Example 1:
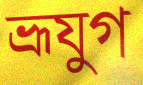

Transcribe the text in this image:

ভ্রূযুগ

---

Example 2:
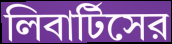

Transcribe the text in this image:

লিবার্টিসের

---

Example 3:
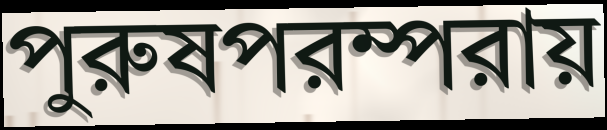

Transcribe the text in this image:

পুরুষপরম্পরায়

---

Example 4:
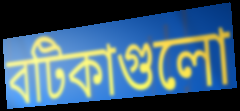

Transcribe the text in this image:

বটিকাগুলো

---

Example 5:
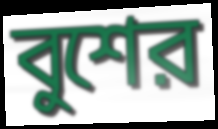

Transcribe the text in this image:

বুশের